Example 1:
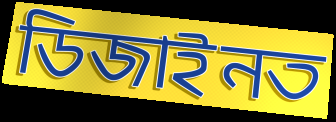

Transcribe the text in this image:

ডিজাইনত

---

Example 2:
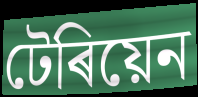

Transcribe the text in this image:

টেৰিয়েন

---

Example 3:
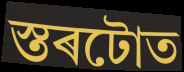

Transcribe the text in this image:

স্তৰটোত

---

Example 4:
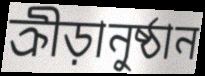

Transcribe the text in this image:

ক্ৰীড়ানুষ্ঠান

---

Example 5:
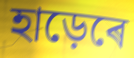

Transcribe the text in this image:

হাড়েৰে